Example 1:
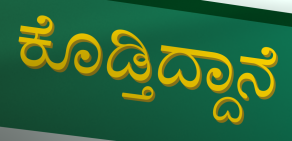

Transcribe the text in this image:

ಕೊಡ್ತಿದ್ದಾನೆ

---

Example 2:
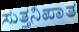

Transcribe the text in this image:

ಸುತ್ತನಿಪಾತ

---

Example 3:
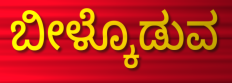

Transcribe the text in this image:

ಬೀಳ್ಕೊಡುವ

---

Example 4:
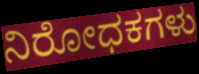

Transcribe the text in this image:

ನಿರೋಧಕಗಳು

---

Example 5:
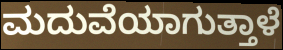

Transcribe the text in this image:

ಮದುವೆಯಾಗುತ್ತಾಳೆ